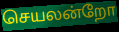
செயலன்றோ